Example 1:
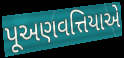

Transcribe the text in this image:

પૂઅણવત્તિયાએ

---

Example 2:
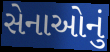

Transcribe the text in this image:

સેનાઓનું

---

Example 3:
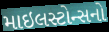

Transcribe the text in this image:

માઇલસ્ટોન્સનો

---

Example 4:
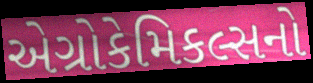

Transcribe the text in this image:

એગ્રોકેમિકલ્સનો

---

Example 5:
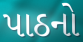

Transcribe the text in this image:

પાઠનો